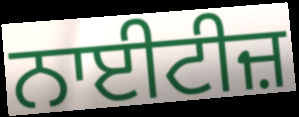
ਨਾਈਟੀਜ਼